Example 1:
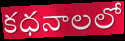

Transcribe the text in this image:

కధనాలలో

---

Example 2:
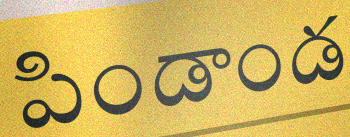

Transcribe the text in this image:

పిండాండ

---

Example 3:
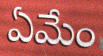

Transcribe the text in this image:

ఏమేం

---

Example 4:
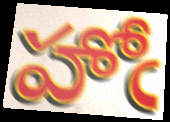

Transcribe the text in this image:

హోఁ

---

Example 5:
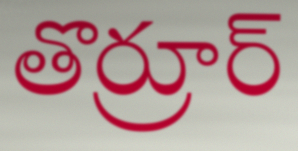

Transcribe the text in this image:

తొర్రూర్